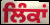
ਲਿੰਕਾਂ